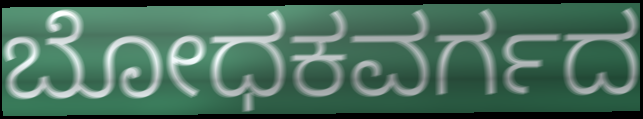
ಬೋಧಕವರ್ಗದ